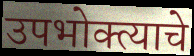
उपभोक्त्याचे